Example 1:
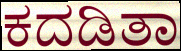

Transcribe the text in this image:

ಕದಡಿತಾ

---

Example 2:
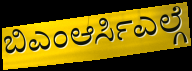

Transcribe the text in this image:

ಬಿಎಂಆರ್ಸಿಎಲ್ಗೆ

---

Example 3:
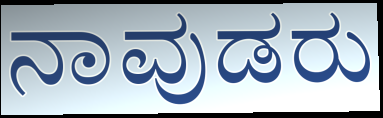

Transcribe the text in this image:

ನಾವುಡರು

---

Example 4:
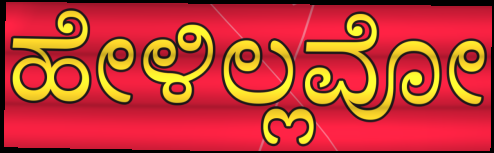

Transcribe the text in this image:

ಹೇಳಿಲ್ಲವೋ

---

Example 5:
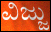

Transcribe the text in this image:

ವಿಜ್ಜು